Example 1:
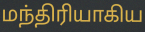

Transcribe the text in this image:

மந்திரியாகிய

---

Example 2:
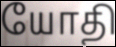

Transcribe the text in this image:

யோதி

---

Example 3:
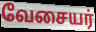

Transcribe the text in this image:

வேசையர்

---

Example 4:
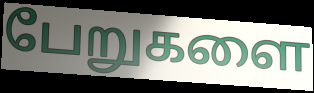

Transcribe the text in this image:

பேறுகளை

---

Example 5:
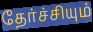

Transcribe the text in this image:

தேர்ச்சியும்